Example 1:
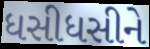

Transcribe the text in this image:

ધસીધસીને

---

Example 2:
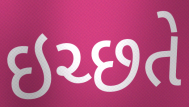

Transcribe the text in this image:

ઇચ્છતે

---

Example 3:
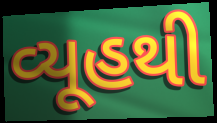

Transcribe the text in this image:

વ્યૂહથી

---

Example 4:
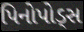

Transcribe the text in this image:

પિનોપોડ્સ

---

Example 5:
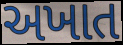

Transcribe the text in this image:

અખાત